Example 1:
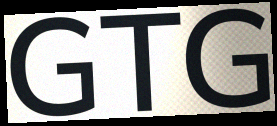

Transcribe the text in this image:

GTG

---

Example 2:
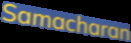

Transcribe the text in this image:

Samacharan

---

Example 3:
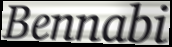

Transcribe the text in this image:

Bennabi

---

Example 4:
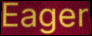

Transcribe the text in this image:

Eager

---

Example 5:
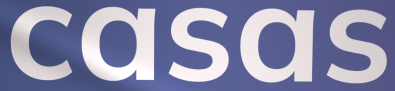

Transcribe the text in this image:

casas